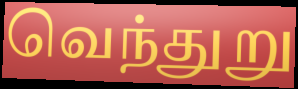
வெந்துறு